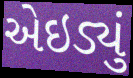
એઇડ્યું